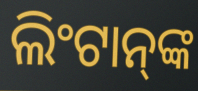
ଲିଂଟାନ୍‍ଙ୍କ